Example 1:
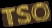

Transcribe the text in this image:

TSO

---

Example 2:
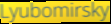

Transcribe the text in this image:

Lyubomirsky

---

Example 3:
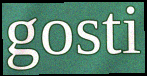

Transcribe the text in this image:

gosti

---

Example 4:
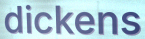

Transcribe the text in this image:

dickens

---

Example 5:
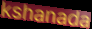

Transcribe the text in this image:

kshanada